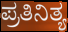
ಪ್ರತಿನಿತ್ಯ